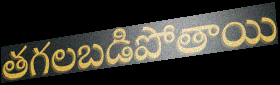
తగలబడిపోతాయి